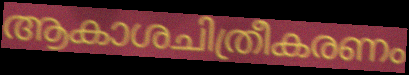
ആകാശചിത്രീകരണം